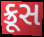
ક્રૂસ